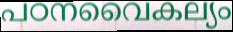
പഠനവൈകല്യം